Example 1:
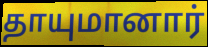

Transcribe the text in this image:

தாயுமானார்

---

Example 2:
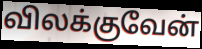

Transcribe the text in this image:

விலக்குவேன்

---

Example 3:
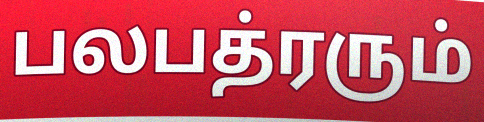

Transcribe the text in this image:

பலபத்ரரும்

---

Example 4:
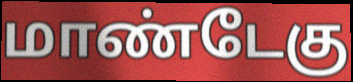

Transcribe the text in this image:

மாண்டேகு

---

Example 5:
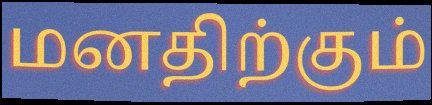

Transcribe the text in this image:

மனதிற்கும்